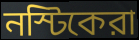
নস্টিকেরা